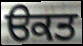
ੳਕਤ